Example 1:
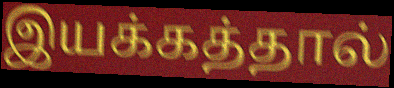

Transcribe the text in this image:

இயக்கத்தால்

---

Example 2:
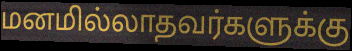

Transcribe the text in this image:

மனமில்லாதவர்களுக்கு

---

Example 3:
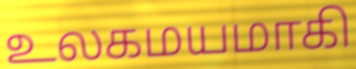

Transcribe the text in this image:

உலகமயமாகி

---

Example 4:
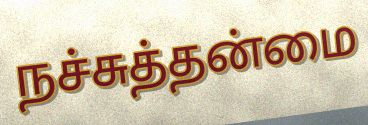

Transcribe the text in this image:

நச்சுத்தன்மை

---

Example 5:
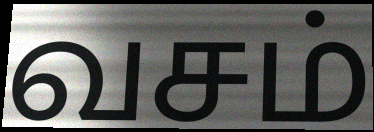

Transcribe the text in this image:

வசம்